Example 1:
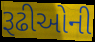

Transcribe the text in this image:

રૂઢીઓની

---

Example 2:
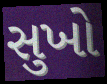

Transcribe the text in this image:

સુખો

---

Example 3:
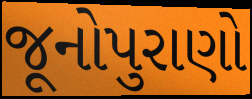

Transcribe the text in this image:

જૂનોપુરાણો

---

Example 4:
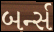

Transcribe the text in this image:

બર્ન્સ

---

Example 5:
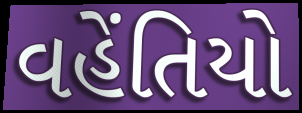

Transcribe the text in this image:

વહેંતિયો